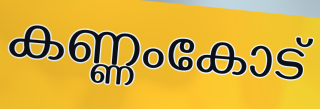
കണ്ണംകോട്